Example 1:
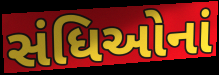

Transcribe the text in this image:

સંધિઓનાં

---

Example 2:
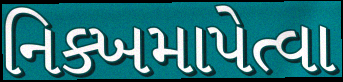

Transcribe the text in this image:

નિક્ખમાપેત્વા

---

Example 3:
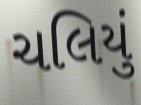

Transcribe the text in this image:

ચલિયું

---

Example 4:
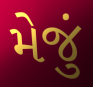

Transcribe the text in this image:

મેજું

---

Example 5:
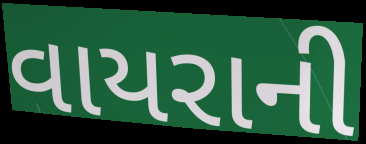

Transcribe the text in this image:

વાયરાની